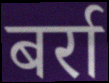
बर्रा